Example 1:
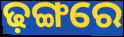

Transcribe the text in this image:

ଢ଼ଙ୍ଗରେ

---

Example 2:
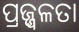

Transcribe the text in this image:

ପ୍ରଜ୍ଜ୍ୱଳତା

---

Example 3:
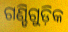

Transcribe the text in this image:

ଗଣ୍ଡିଗୁଡ଼ିକ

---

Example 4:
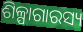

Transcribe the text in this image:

ଶିଳ୍ପାଗାରସ୍ୟ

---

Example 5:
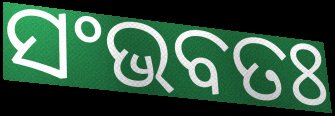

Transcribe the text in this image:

ସଂଭବତଃ